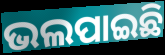
ଭଲପାଇଛି